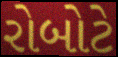
રોબોટે